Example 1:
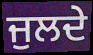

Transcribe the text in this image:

ਜੁਲਦੇ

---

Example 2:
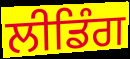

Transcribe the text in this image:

ਲੀਡਿੰਗ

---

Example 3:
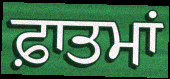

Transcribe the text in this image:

ਫ਼ਾਤਮਾਂ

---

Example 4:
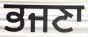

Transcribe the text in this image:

ਭਜਣਾ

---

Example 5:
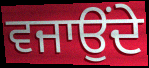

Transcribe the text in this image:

ਵਜਾਉਂਦੇ